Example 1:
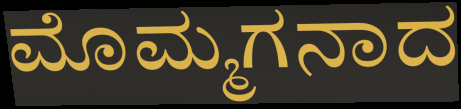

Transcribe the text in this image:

ಮೊಮ್ಮಗನಾದ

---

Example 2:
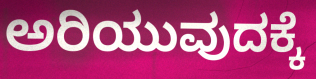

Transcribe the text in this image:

ಅರಿಯುವುದಕ್ಕೆ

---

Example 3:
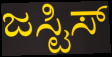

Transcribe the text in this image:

ಜಸ್ಟಿಸ್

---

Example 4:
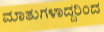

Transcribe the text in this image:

ಮಾತುಗಳಾದ್ದರಿಂದ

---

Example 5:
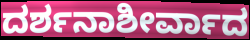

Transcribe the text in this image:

ದರ್ಶನಾಶೀರ್ವಾದ